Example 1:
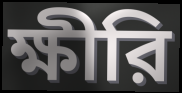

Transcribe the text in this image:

ক্ষীরি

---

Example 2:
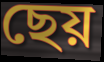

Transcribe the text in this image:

ছেয়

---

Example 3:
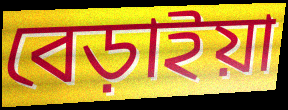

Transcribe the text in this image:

বেড়াইয়া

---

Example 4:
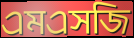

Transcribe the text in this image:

এমএসজি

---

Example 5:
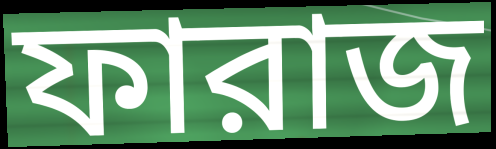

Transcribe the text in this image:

ফারাজ